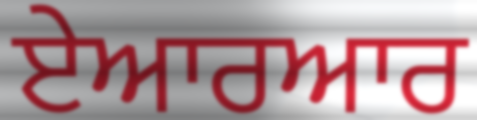
ਏਆਰਆਰ